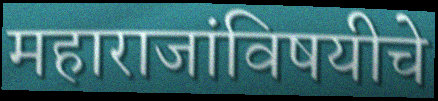
महाराजांविषयीचे